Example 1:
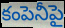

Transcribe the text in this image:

కంపెనీపై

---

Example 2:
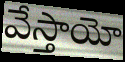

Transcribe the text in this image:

వేస్తాయో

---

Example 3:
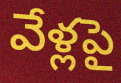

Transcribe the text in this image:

వేళ్లపై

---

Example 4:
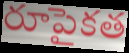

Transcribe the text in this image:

రూపైకత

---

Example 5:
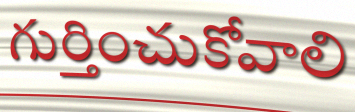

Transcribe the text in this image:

గుర్తించుకోవాలి